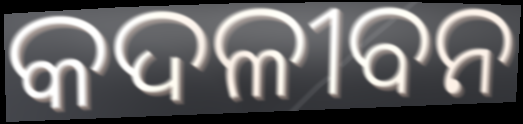
କଦଳୀବନ